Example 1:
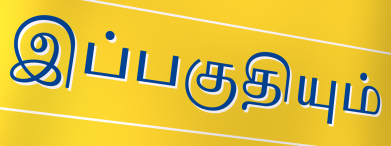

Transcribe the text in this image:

இப்பகுதியும்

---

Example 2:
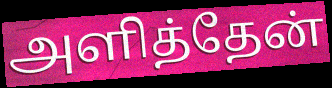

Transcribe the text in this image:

அளித்தேன்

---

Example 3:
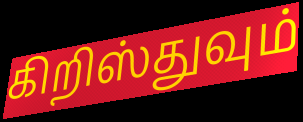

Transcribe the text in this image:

கிறிஸ்துவும்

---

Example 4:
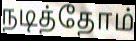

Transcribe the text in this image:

நடித்தோம்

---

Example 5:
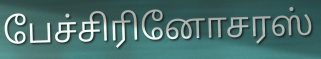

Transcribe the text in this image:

பேச்சிரினோசரஸ்